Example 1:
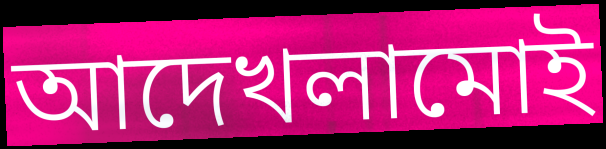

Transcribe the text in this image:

আদেখলামোই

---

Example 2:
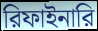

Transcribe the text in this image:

রিফাইনারি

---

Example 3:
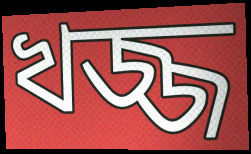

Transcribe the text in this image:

খজ্জ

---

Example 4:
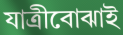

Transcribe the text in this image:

যাত্রীবোঝাই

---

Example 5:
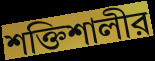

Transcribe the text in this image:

শক্তিশালীর